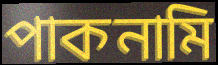
পাকনামি